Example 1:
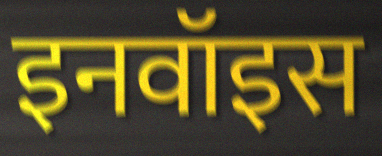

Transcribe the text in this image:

इनवॉइस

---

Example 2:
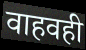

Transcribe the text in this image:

वाहवही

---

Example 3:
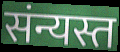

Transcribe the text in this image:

संन्यस्त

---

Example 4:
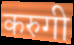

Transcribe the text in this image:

करुगी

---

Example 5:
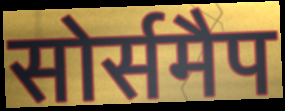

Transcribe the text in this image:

सोर्समैप